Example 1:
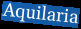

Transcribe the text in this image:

Aquilaria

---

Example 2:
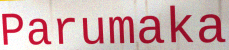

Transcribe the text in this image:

Parumaka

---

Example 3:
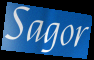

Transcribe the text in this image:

Sagor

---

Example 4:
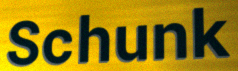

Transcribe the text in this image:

Schunk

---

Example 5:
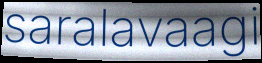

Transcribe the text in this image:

saralavaagi